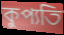
কুপ্যতি